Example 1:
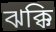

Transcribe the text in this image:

ঝক্কি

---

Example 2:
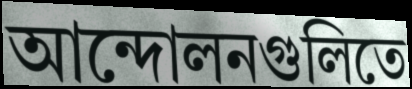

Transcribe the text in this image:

আন্দোলনগুলিতে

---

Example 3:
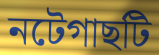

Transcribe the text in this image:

নটেগাছটি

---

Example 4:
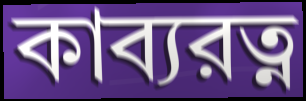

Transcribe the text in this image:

কাব্যরত্ন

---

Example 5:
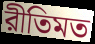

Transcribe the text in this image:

রীতিমত